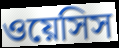
ওয়েসিস